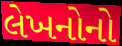
લેખનોનો